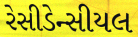
રેસીડેન્સીયલ